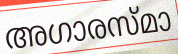
അഗാരസ്മാ